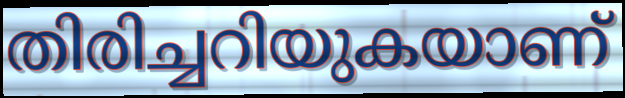
തിരിച്ചറിയുകയാണ്